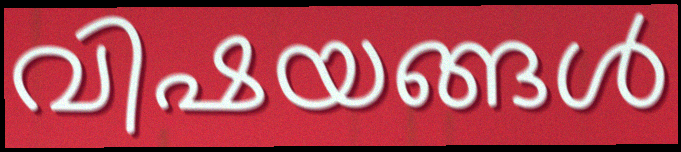
വിഷയങ്ങൾ